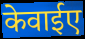
केवाईए